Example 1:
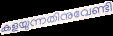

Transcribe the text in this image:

കളയുന്നതിനുവേണ്ടി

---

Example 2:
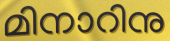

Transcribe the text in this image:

മിനാറിനു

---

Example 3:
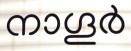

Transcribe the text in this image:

നാഗൂർ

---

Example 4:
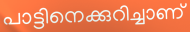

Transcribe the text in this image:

പാട്ടിനെക്കുറിച്ചാണ്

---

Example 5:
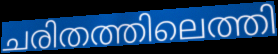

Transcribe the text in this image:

ചരിതത്തിലെത്തി